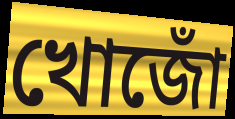
খোজোঁ